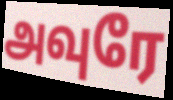
அவுரே